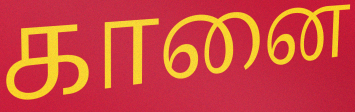
கானை